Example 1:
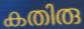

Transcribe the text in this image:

കതിരു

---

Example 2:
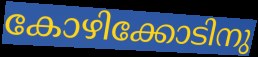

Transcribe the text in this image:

കോഴിക്കോടിനു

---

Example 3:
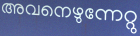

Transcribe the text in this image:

അവനെഴുന്നേറ്റു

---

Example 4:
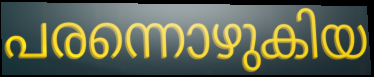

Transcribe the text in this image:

പരന്നൊഴുകിയ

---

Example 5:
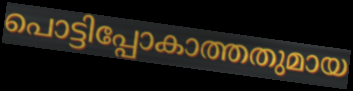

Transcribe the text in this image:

പൊട്ടിപ്പോകാത്തതുമായ